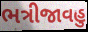
ભત્રીજાવહુ